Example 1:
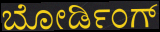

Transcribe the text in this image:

ಬೋರ್ಡಿಂಗ್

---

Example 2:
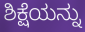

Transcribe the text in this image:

ಶಿಕ್ಷೆಯನ್ನು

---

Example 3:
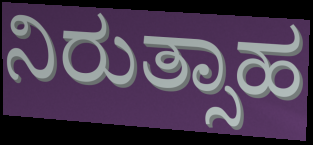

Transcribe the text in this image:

ನಿರುತ್ಸಾಹ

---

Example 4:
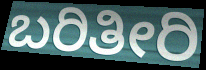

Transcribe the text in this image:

ಬರಿತೀರಿ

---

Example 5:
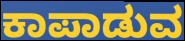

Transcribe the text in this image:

ಕಾಪಾಡುವ